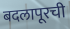
बदलापूरची